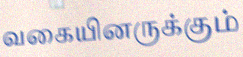
வகையினருக்கும்